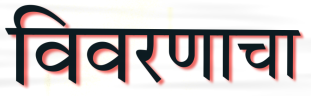
विवरणाचा